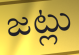
జట్లు